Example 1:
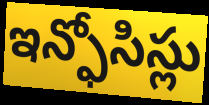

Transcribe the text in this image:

ఇన్ఫోసిస్లు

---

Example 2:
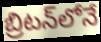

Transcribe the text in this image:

బ్రిటన్‌లోనే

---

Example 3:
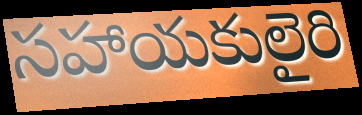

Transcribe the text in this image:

సహాయకులైరి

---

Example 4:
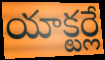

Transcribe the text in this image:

యాక్టర్లే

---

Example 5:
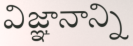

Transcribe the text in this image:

విజ్ఞానాన్ని